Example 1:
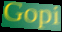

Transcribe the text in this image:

Gopi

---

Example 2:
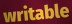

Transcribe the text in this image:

writable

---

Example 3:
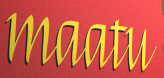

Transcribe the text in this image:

maatu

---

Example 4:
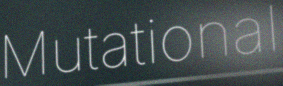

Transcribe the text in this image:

Mutational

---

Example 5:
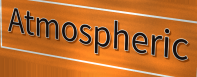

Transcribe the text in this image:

Atmospheric